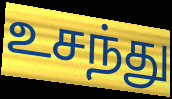
உசந்து